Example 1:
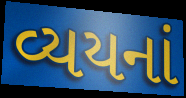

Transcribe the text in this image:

વ્યયનાં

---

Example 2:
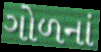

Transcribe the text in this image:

ગોળનાં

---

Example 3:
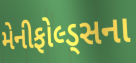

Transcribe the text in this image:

મેનીફોલ્ડ્સના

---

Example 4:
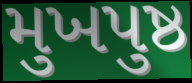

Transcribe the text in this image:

મુખપુષ્ઠ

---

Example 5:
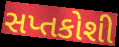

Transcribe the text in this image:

સપ્તકોશી